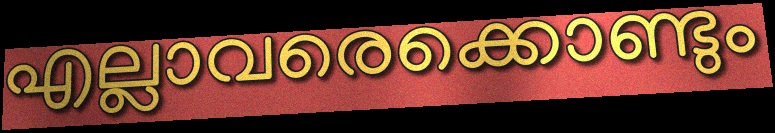
എല്ലാവരെക്കൊണ്ടും